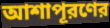
আশাপূরণের